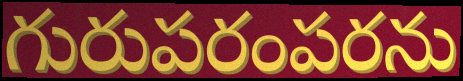
గురుపరంపరను